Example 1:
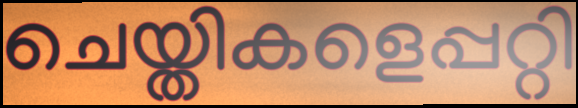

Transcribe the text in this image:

ചെയ്തികളെപ്പറ്റി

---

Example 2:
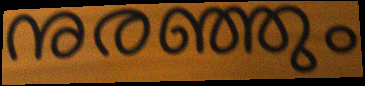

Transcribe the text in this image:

നുരഞ്ഞും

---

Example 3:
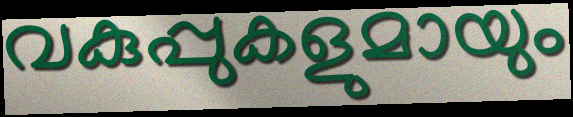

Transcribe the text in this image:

വകുപ്പുകളുമായും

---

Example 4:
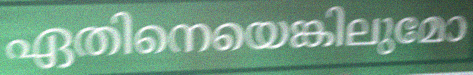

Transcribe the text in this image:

ഏതിനെയെങ്കിലുമോ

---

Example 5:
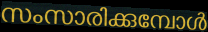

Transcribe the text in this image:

സംസാരിക്കുമ്പോൾ